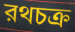
রথচক্র